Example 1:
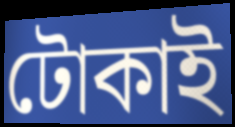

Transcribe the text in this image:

টোকাই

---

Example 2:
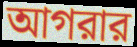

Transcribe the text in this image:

আগরার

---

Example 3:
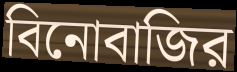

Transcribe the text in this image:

বিনোবাজির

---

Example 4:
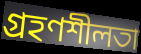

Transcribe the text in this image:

গ্রহণশীলতা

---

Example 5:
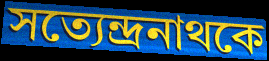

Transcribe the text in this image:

সত্যেন্দ্রনাথকে